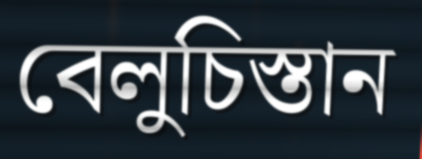
বেলুচিস্তান